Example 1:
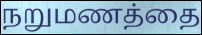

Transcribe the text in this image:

நறுமணத்தை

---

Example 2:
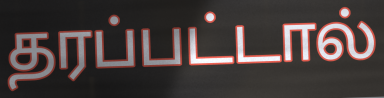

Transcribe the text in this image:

தரப்பட்டால்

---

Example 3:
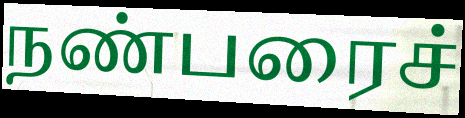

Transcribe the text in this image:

நண்பரைச்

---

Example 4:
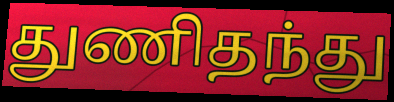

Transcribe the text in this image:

துணிதந்து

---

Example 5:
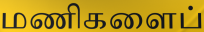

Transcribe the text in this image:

மணிகளைப்